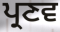
ਪ੍ਰਣਵ